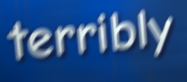
terribly